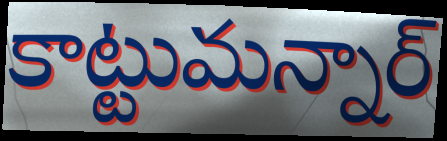
కాట్టుమన్నార్